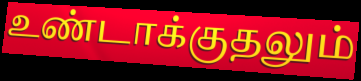
உண்டாக்குதலும்